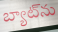
బ్యాట్‌ను